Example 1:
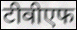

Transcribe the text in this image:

टीवीएफ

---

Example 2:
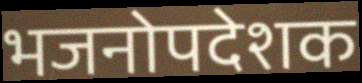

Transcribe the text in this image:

भजनोपदेशक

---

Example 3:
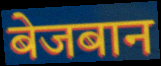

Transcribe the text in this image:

बेजबान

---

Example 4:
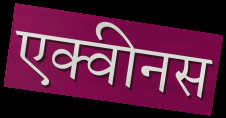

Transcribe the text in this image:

एक्वीनस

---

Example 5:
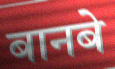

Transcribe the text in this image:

बानबे